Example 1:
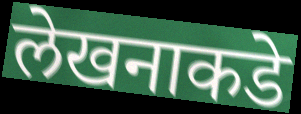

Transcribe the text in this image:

लेखनाकडे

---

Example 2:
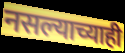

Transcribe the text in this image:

नसल्याच्याही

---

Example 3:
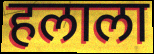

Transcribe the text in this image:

हलाला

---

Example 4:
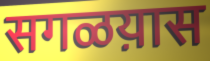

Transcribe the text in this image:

सगळय़ास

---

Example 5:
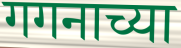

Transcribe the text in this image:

गगनाच्या